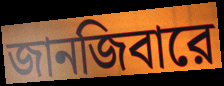
জানজিবারে